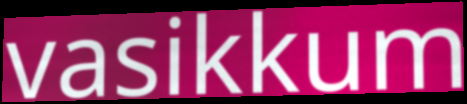
vasikkum